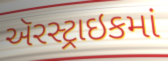
ઍરસ્ટ્રાઇકમાં